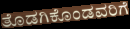
ತೊಡಗಿಕೊಂಡವರಿಗೆ